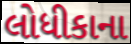
લોધીકાના